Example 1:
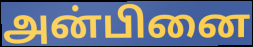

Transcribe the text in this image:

அன்பினை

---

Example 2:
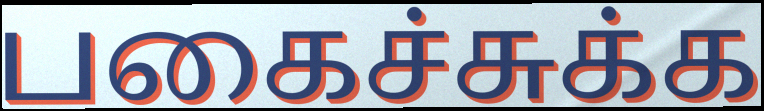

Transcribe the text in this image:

பகைச்சுக்க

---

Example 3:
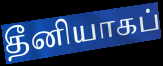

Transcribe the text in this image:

தீனியாகப்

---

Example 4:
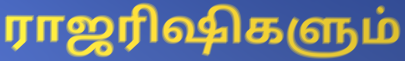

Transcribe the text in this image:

ராஜரிஷிகளும்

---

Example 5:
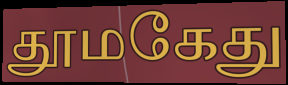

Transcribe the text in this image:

தூமகேது